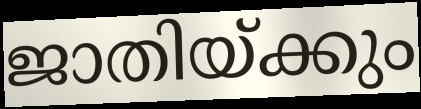
ജാതിയ്ക്കും